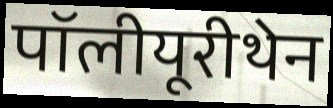
पॉलीयूरीथेन